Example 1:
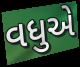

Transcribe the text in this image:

વધુએ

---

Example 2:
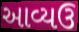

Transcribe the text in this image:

આવ્યઉ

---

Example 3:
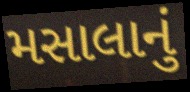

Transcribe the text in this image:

મસાલાનું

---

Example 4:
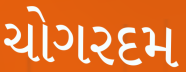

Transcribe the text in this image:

ચોગરદમ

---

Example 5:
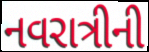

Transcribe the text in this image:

નવરાત્રીની